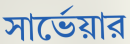
সার্ভেয়ার